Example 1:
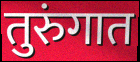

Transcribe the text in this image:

तुरुंगात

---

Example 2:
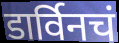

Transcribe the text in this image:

डार्विनचं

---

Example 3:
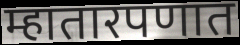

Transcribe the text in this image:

म्हातारपणात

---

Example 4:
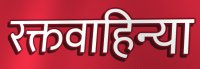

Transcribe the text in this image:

रक्तवाहिन्या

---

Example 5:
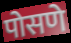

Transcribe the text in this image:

पोसणे